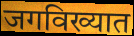
जगविख्यात